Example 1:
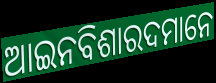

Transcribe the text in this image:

ଆଇନବିଶାରଦମାନେ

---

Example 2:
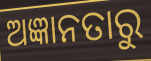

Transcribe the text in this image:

ଅଜ୍ଞାନତାରୁ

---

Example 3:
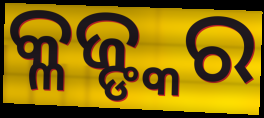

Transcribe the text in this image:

କ୍ଳଜ୍ଙ୍କର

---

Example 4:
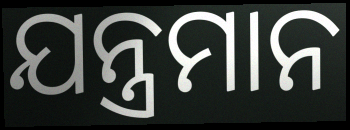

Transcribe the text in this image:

ଯନ୍ତ୍ରମାନ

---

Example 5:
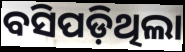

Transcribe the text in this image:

ବସିପଡ଼ିଥିଲା